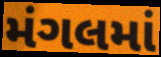
મંગલમાં